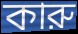
কাৰু